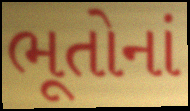
ભૂતોનાં